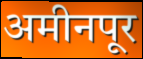
अमीनपूर